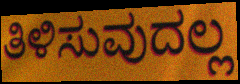
ತಿಳಿಸುವುದಲ್ಲ